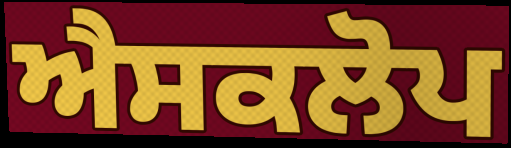
ਐਸਕਲੋਪ